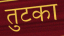
तुटका